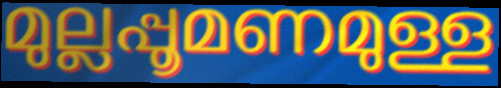
മുല്ലപ്പൂമണമുള്ള